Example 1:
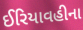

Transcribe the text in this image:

ઈરિયાવહીના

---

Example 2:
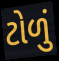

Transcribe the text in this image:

ટોળું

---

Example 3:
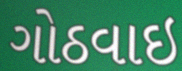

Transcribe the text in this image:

ગોઠવાઇ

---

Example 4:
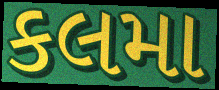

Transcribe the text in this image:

કલમા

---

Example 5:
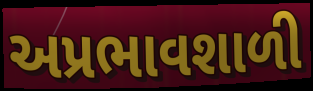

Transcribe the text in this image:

અપ્રભાવશાળી